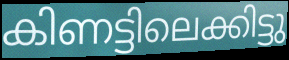
കിണട്ടിലെക്കിട്ടു